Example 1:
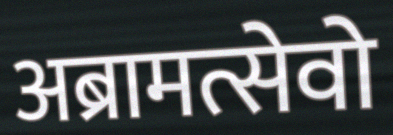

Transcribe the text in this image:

अब्रामत्सेवो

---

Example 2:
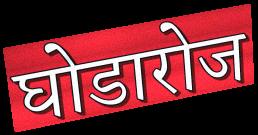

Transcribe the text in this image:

घोडारोज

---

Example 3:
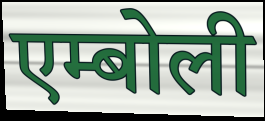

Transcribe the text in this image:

एम्बोली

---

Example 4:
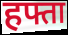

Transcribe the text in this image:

हफ्ता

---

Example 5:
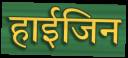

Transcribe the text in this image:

हाईजिन